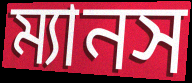
ম্যানস